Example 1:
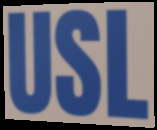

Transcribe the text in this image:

USL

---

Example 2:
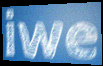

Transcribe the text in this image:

iwe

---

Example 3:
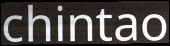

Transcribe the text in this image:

chintao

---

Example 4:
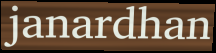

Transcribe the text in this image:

janardhan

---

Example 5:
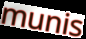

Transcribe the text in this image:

munis